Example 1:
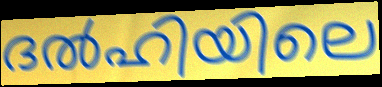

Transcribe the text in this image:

ദൽഹിയിലെ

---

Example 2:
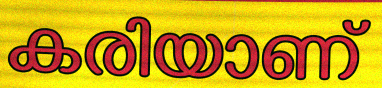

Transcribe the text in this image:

കരിയാണ്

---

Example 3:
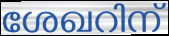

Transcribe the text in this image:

ശേഖറിന്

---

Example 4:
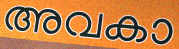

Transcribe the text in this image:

അവകാ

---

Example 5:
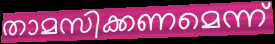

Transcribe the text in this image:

താമസിക്കണമെന്ന്